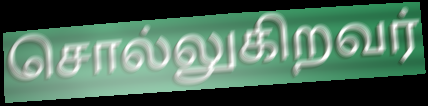
சொல்லுகிறவர்